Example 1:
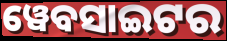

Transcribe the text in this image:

ୱେବସାଇଟର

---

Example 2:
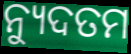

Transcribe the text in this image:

ନ୍ୟୁଦତମ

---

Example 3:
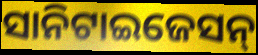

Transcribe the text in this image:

ସାନିଟାଇଜେସନ୍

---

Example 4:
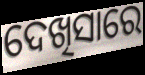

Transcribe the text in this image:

ଦେଖିସାରେ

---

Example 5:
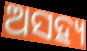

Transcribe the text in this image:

ଅସହ୍ୟ